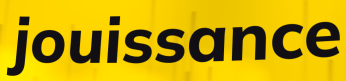
jouissance